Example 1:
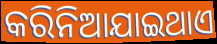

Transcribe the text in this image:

କରିନିଆଯାଇଥାଏ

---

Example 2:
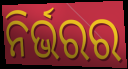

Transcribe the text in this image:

ନିର୍ଭରର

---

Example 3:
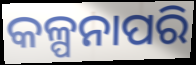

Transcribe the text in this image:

କଳ୍ପନାପରି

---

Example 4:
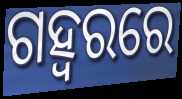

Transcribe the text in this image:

ଗହ୍ୱରରେ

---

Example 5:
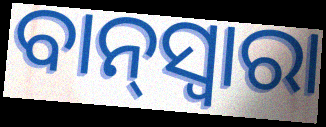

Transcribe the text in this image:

ବାନ୍‌ସ୍ୱାରା